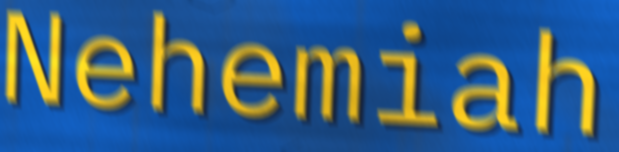
Nehemiah